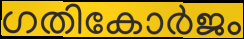
ഗതികോർജം